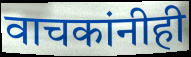
वाचकांनीही